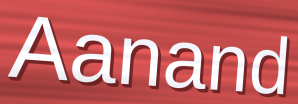
Aanand